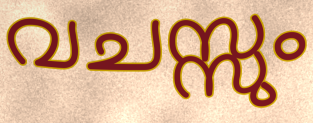
വചസ്സും